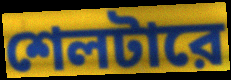
শেলটারে